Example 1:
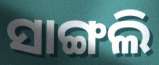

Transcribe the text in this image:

ସାଙ୍ଗଲି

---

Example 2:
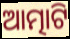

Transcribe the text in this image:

ଆତ୍ମାଟି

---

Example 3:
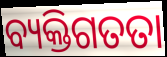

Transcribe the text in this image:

ବ୍ୟକ୍ତିଗତତା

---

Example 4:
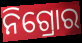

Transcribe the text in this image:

ନିଗ୍ରୋର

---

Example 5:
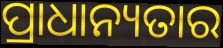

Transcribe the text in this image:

ପ୍ରାଧାନ୍ୟତାର